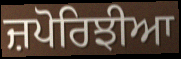
ਜ਼ਪੋਰਿਝੀਆ